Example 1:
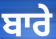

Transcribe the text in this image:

ਬਾਰੇ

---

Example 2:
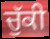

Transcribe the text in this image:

ਚੁੱਕੀ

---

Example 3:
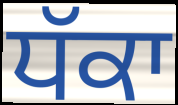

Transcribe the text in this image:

ਧੱਕਾ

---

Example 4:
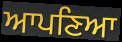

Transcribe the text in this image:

ਆਪਣਿਆ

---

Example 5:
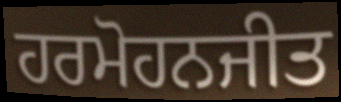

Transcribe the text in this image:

ਹਰਮੋਹਨਜੀਤ